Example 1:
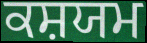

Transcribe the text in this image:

ਕਸ਼ਯਮ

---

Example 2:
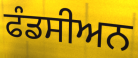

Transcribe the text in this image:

ਫੰਡਸੀਅਨ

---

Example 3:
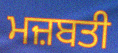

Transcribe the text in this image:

ਮਜ਼ਬਤੀ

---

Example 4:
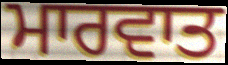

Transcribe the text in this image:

ਮਾਰਵਾਤ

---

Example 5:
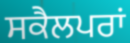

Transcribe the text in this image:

ਸਕੈਲਪਰਾਂ